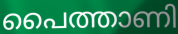
പൈത്താണി